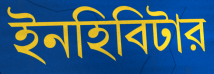
ইনহিবিটার